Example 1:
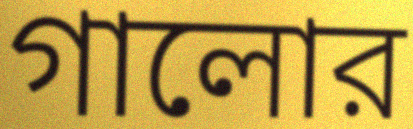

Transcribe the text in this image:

গালোর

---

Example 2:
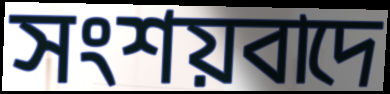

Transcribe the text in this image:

সংশয়বাদে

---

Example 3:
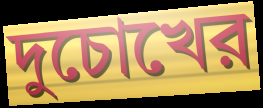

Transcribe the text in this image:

দুচোখের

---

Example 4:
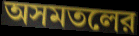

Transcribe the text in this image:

অসমতলের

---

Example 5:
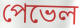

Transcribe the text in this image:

পেভেল